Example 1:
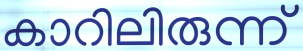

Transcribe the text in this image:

കാറിലിരുന്ന്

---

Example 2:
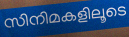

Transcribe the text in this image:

സിനിമകളിലൂടെ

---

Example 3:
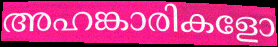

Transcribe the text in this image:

അഹങ്കാരികളോ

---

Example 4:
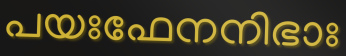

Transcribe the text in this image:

പയഃഫേനനിഭാഃ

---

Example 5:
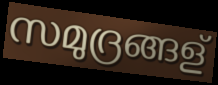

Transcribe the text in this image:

സമുദ്രങ്ങള്